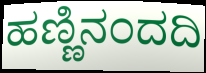
ಹಣ್ಣಿನಂದದಿ